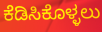
ಕೆಡಿಸಿಕೊಳ್ಳಲು